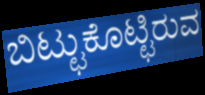
ಬಿಟ್ಟುಕೊಟ್ಟಿರುವ